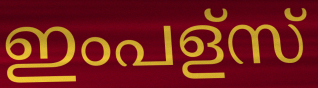
ഇംപള്സ്